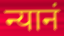
न्यानं